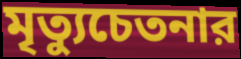
মৃত্যুচেতনার